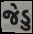
જેડુ